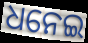
ଧନେଇ